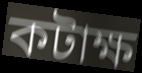
কটাক্ষ